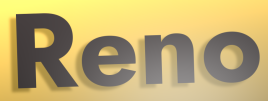
Reno